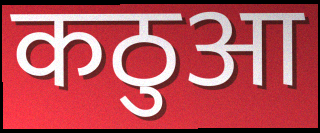
कठुआ